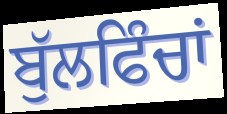
ਬੁੱਲਫਿੰਚਾਂ